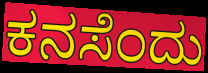
ಕನಸೆಂದು